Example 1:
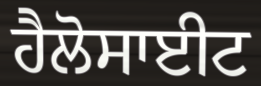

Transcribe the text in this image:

ਹੈਲੋਸਾਈਟ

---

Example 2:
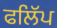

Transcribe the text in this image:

ਫਲਿੱਪ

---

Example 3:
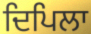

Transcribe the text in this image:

ਦਿਪਿਲਾ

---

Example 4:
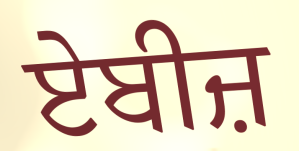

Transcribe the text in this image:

ਏਬੀਜ਼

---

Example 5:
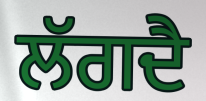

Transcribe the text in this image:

ਲੱਗਦੈ